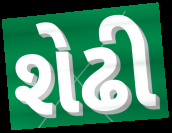
શેઢી